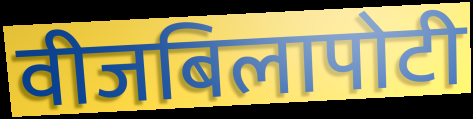
वीजबिलापोटी